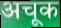
अचूक